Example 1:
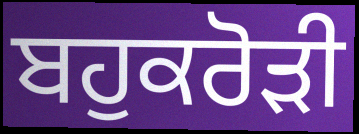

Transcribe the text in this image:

ਬਹੁਕਰੋਡ਼ੀ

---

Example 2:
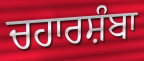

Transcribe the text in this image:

ਚਹਾਰਸ਼ੰਬਾ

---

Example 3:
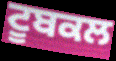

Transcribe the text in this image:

ਟੂਬਕਲ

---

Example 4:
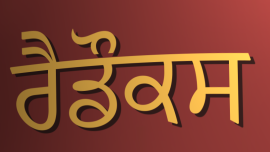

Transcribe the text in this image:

ਰੈਡੌਕਸ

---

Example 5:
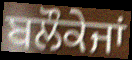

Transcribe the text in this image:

ਬਲੌਕੇਜਾਂ